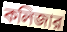
কলিজার